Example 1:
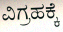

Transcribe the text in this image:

ವಿಗ್ರಹಕ್ಕೆ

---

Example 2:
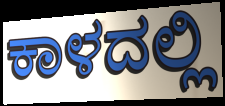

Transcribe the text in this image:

ಕಾಳದಲ್ಲಿ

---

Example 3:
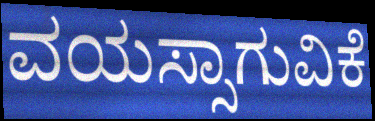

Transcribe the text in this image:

ವಯಸ್ಸಾಗುವಿಕೆ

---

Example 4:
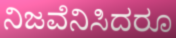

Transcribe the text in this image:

ನಿಜವೆನಿಸಿದರೂ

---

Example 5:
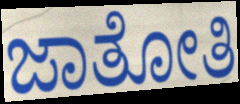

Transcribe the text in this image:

ಜಾತೋತಿ